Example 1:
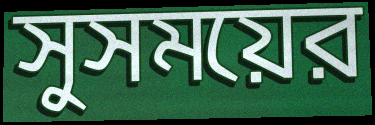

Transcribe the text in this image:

সুসময়ের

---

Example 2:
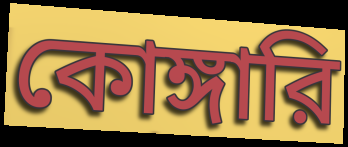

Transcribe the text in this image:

কোঙ্গারি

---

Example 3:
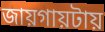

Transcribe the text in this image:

জায়গায়টায়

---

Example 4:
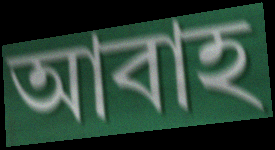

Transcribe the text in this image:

আবাহ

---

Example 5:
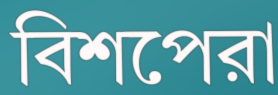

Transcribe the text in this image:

বিশপেরা